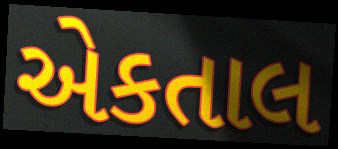
એકતાલ